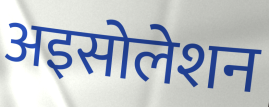
अइसोलेशन